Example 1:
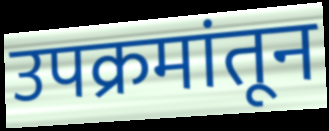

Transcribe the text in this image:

उपक्रमांतून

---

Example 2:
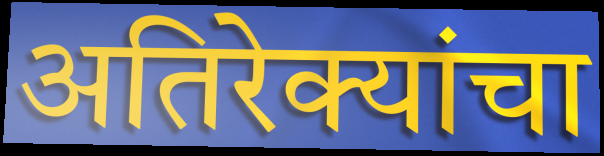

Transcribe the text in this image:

अतिरेक्यांचा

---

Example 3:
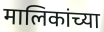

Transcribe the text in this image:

मालिकांच्या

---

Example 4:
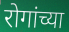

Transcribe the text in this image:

रोगांच्या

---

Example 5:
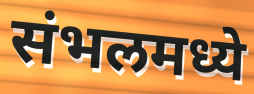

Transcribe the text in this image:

संभलमध्ये